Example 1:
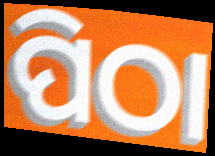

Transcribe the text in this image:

ପିଠା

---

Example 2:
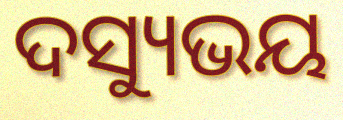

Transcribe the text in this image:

ଦସ୍ୟୁଭୟ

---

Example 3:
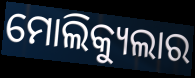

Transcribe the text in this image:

ମୋଲିକ୍ୟୁଲାର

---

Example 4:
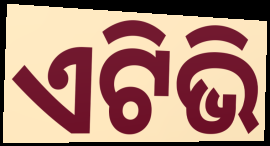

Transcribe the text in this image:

ଏଟିଭି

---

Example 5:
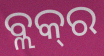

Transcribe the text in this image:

ବ୍ଲକ୍‍ର